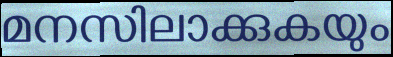
മനസിലാക്കുകയും